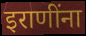
इराणींना